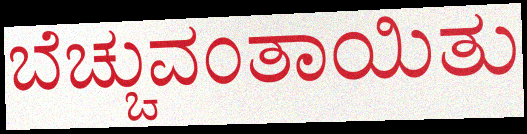
ಬೆಚ್ಚುವಂತಾಯಿತು